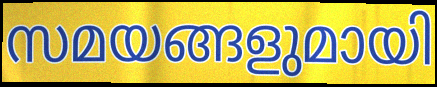
സമയങ്ങളുമായി